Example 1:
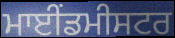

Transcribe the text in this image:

ਮਾਈਂਡਮੀਸਟਰ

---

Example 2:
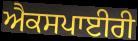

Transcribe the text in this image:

ਐਕਸਪਾਈਰੀ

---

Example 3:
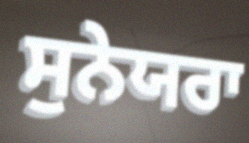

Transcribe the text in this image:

ਸੁਨੇਯਰਾ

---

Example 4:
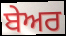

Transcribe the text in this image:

ਬੇਅਰ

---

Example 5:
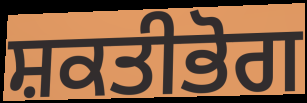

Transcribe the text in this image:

ਸ਼ਕਤੀਭੋਗ